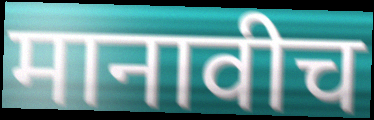
मानावीच